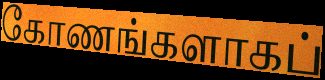
கோணங்களாகப்